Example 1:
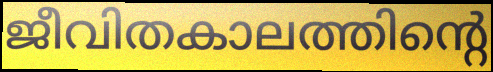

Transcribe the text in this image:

ജീവിതകാലത്തിന്റെ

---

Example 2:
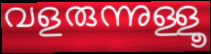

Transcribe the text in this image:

വളരുന്നുള്ളൂ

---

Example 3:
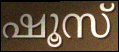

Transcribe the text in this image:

ഷൂസ്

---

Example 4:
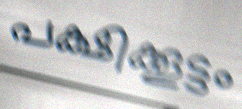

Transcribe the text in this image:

പക്ഷിക്കൂട്ടം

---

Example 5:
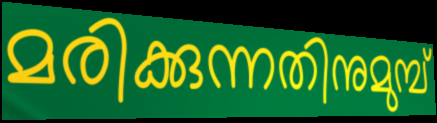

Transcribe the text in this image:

മരിക്കുന്നതിനുമുമ്പ്